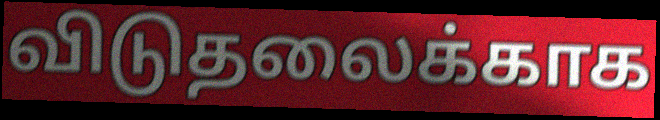
விடுதலைக்காக